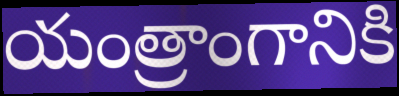
యంత్రాంగానికి